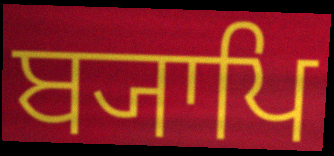
ਬ੍ਯਾਪਿ